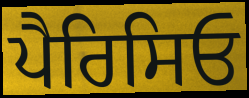
ਪੈਰਿਸਿਓ